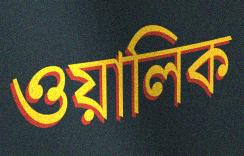
ওয়ালিক